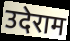
उदेराम